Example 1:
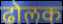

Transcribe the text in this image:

ढोलक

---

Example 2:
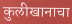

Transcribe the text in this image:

कुलीखानाचा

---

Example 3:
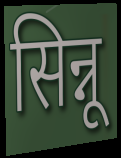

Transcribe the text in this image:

सिन्नू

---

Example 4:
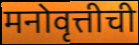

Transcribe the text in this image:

मनोवृत्तीची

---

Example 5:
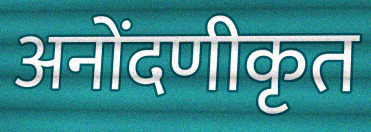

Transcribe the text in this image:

अनोंदणीकृत